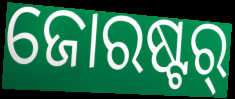
ଜୋରଷ୍ଟର୍